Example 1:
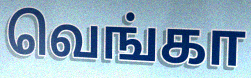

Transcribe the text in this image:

வெங்கா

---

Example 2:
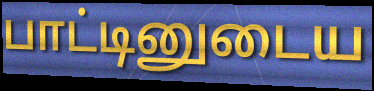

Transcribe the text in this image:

பாட்டினுடைய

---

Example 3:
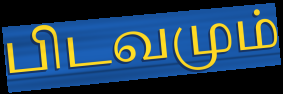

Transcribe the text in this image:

பிடவமும்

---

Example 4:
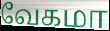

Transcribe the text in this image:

வேகமா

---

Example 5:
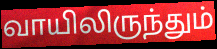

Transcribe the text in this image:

வாயிலிருந்தும்